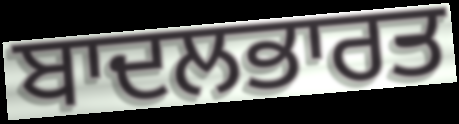
ਬਾਦਲਭਾਰਤ